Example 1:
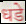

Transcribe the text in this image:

धडे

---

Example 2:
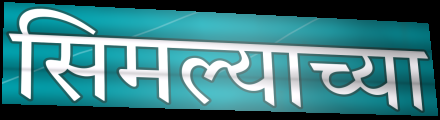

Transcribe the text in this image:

सिमल्याच्या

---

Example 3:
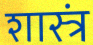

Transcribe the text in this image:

शास्त्रं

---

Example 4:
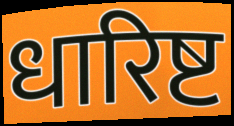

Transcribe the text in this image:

धारिष्ट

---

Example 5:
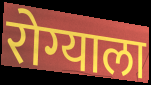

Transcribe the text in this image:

रोग्याला